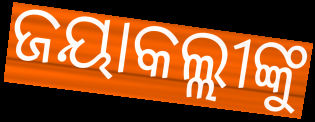
ଜୟାକଲ୍ଲୀଙ୍କୁ